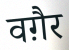
वग़ैर